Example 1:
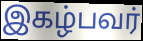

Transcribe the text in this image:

இகழ்பவர்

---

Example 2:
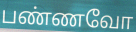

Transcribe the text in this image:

பண்ணவோ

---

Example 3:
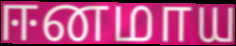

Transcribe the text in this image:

ஈனமாய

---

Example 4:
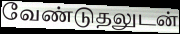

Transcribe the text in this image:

வேண்டுதலுடன்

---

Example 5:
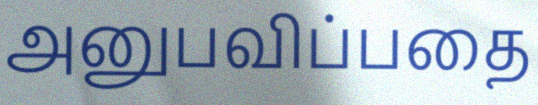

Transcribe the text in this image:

அனுபவிப்பதை